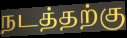
நடத்தற்கு